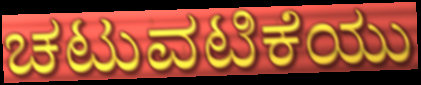
ಚಟುವಟಿಕೆಯು